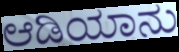
ಆಡಿಯಾನು